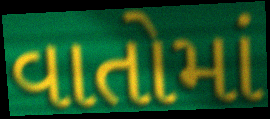
વાતોમાં